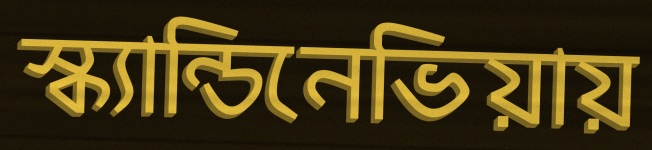
স্ক্যান্ডিনেভিয়ায়